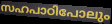
സഹപാഠിപോലും